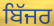
ਬਿੱਜਰ